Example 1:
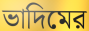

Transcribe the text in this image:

ভাদিমের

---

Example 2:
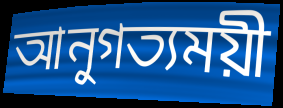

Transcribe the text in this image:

আনুগত্যময়ী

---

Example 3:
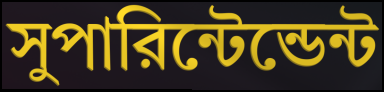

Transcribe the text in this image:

সুপারিন্টেন্ডেন্ট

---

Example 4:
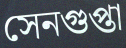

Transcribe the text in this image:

সেনগুপ্তা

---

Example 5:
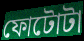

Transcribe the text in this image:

ফোটোটা